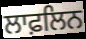
ਲਾਫ਼ਲਿਨ